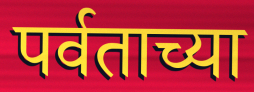
पर्वताच्या